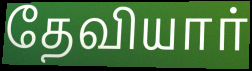
தேவியார்